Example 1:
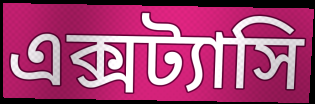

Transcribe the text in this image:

এক্সট্যাসি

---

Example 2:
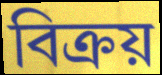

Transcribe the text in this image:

বিক্রয়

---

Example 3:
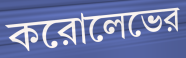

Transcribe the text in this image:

করোলেভের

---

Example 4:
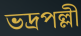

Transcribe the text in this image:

ভদ্রপল্লী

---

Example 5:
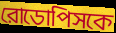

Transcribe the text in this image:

রোডোপিসকে